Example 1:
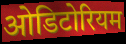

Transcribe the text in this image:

ओडिटोरियम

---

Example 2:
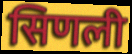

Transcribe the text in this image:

सिणली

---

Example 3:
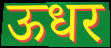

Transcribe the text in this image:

ऊधर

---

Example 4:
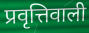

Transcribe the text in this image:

प्रवृत्तिवाली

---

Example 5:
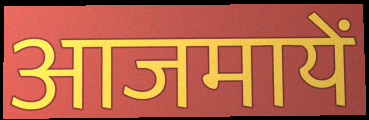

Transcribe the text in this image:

आजमायें